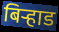
बिर्‍हाड